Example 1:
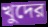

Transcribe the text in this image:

খুদের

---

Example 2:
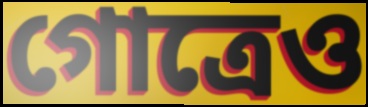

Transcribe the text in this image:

গোত্রেও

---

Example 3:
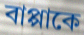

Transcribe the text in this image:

বাপ্পাকে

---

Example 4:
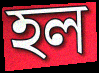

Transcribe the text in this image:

হল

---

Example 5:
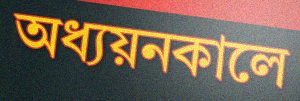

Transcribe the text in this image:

অধ্যয়নকালে